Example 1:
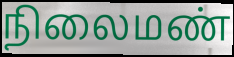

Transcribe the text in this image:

நிலைமண்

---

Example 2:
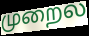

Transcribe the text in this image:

முறைல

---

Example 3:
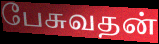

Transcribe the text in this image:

பேசுவதன்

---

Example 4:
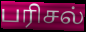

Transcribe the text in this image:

பரிசல்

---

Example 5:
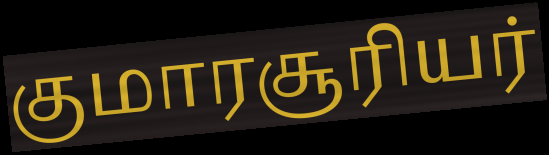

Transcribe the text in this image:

குமாரசூரியர்